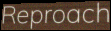
Reproach